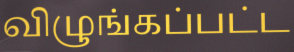
விழுங்கப்பட்ட